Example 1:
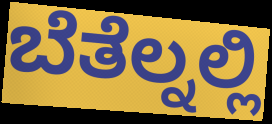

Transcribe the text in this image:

ಬೆತೆಲ್ನಲ್ಲಿ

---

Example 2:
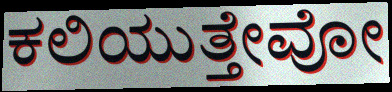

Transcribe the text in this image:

ಕಲಿಯುತ್ತೇವೋ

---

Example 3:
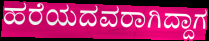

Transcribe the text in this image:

ಹರೆಯದವರಾಗಿದ್ದಾಗ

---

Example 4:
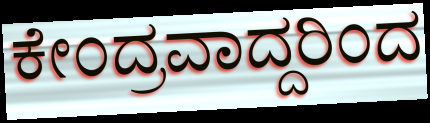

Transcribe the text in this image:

ಕೇಂದ್ರವಾದ್ದರಿಂದ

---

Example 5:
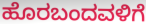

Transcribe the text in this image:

ಹೊರಬಂದವಳಿಗೆ